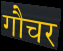
गौचर